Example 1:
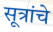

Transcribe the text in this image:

सूत्रांचे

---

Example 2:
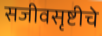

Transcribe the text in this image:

सजीवसृष्टीचे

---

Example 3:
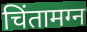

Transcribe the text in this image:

चिंतामग्न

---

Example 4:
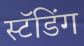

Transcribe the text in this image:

स्टॅडिंग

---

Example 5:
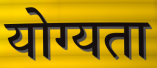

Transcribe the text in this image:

योग्यता